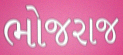
ભોજરાજ